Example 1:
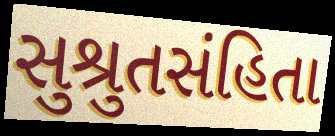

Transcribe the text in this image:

સુશ્રુતસંહિતા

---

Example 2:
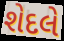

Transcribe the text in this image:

શેદલે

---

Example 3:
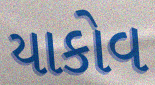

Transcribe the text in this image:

યાકોવ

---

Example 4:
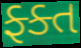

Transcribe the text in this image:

ફ્ક્ત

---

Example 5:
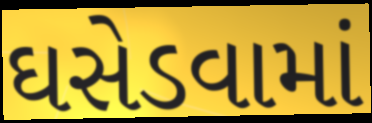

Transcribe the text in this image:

ઘસેડવામાં